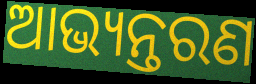
ଆଭ୍ୟନ୍ତରଣ